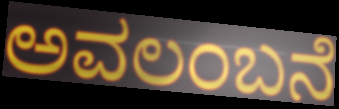
ಅವಲಂಬನೆ